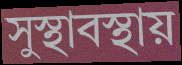
সুস্থাবস্থায়